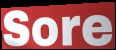
Sore